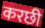
करछी